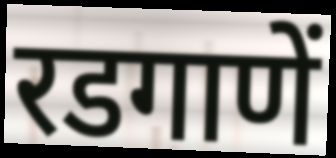
रडगाणें